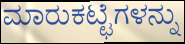
ಮಾರುಕಟ್ಟೆಗಳನ್ನು